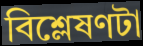
বিশ্লেষণটা